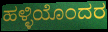
ಹಳ್ಳಿಯೊಂದರ